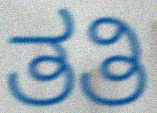
ತತಿ